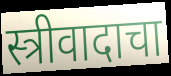
स्त्रीवादाचा